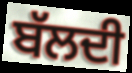
ਬੱਲਦੀ